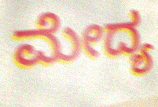
ಮೇದ್ಯ